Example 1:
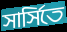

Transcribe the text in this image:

সার্সিতে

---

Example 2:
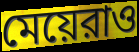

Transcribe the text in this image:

মেয়েরাও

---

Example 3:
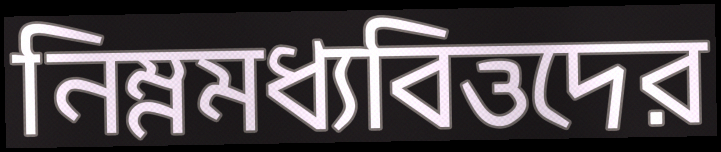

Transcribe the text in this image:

নিম্নমধ্যবিত্তদের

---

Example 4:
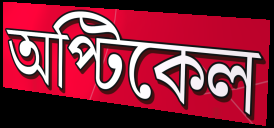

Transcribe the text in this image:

অপ্টিকেল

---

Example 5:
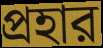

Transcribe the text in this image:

প্রহার